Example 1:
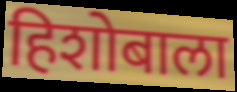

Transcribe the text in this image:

हिशोबाला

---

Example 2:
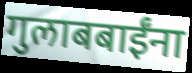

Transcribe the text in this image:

गुलाबबाईंना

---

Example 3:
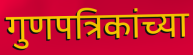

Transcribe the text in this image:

गुणपत्रिकांच्या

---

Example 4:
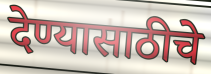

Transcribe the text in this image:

देण्यासाठीचे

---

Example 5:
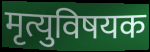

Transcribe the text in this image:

मृत्युविषयक